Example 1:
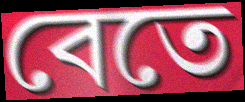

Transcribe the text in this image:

বেতে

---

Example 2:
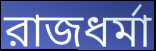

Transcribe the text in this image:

রাজধর্মা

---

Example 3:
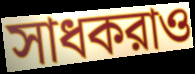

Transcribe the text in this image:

সাধকরাও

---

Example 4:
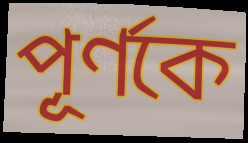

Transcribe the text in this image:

পূর্ণকে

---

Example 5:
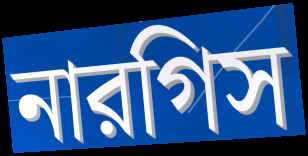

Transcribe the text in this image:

নারগিস